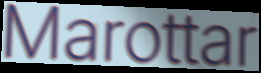
Marottar